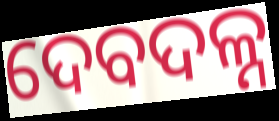
ଦେବଦଳ୍ନ